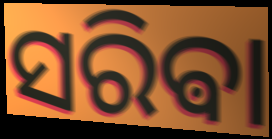
ସରିଵା